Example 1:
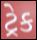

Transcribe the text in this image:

ટ્રેક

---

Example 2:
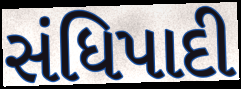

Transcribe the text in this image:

સંધિપાદી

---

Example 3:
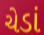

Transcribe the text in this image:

ચેડાં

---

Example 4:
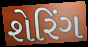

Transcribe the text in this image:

શેરિંગ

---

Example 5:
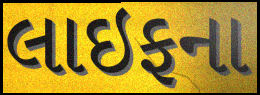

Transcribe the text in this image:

લાઇફના